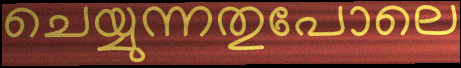
ചെയ്യുന്നതുപോലെ